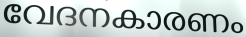
വേദനകാരണം